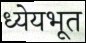
ध्येयभूत